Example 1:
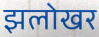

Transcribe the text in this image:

झलोखर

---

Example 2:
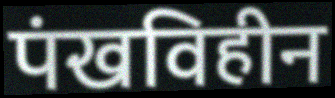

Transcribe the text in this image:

पंखविहीन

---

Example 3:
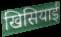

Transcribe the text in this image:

खिसियाई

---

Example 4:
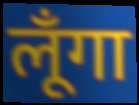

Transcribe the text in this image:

लूँगा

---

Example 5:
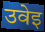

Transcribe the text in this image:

उवेइ